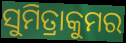
ସୁମିତ୍ରାକୁମର